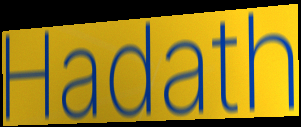
Hadath